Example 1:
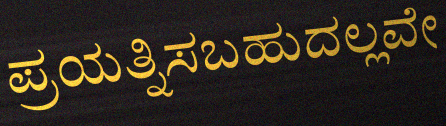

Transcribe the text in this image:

ಪ್ರಯತ್ನಿಸಬಹುದಲ್ಲವೇ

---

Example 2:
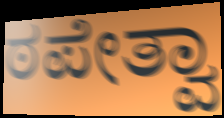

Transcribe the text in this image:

ಠಪೇತ್ವಾ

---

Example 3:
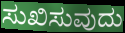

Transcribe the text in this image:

ಸುಖಿಸುವುದು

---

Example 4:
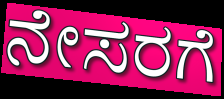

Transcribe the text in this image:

ನೇಸರಗೆ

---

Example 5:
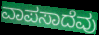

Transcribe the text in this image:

ವಾಪಸಾದೆವು